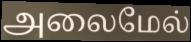
அலைமேல்